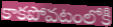
కాకపోవటంలోకీ